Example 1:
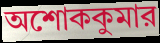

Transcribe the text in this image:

অশোককুমার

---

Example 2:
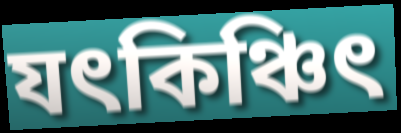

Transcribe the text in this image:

যৎকিঞ্চিৎ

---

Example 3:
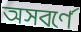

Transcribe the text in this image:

অসবর্ণে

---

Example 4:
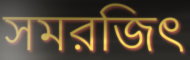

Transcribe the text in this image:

সমরজিৎ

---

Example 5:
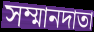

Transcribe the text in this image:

সম্মানদাতা